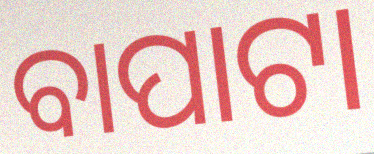
ବାପାଟା